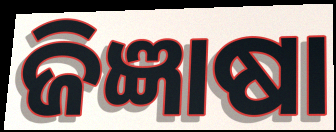
ଜିଜ୍ଞାଷା